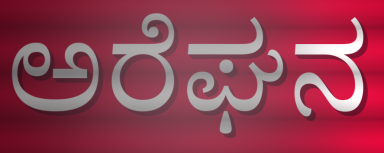
ಅರೆಘನ